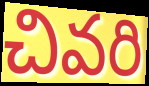
చివరి